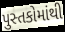
પુસ્તકોમાંથી